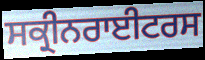
ਸਕ੍ਰੀਨਰਾਈਟਰਸ